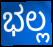
ಭಲ್ಲ